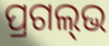
ପ୍ରଗଲ୍‌ଭ